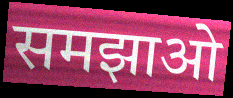
समझाओ